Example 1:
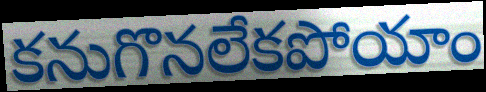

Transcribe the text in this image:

కనుగొనలేకపోయాం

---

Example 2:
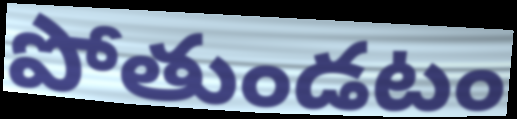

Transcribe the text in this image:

పోతుండటం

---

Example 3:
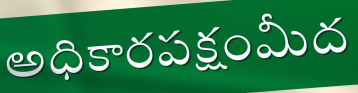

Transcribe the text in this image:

అధికారపక్షంమీద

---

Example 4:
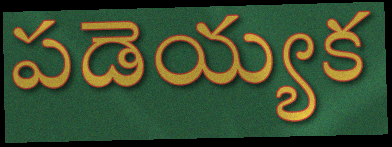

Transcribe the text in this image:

పడెయ్యక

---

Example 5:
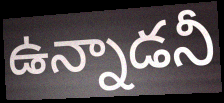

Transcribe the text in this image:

ఉన్నాడనీ